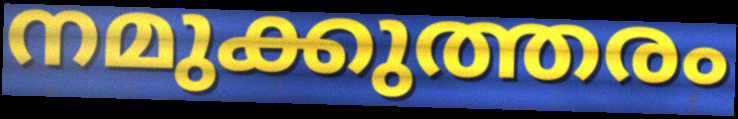
നമുക്കുത്തരം